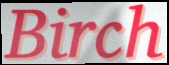
Birch